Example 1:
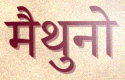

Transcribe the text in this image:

मैथुनो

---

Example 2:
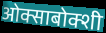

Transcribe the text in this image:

ओक्साबोक्शी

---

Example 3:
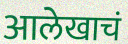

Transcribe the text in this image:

आलेखाचं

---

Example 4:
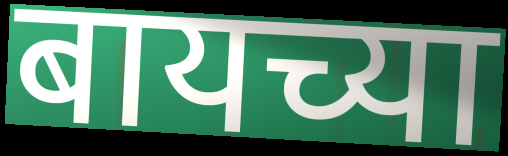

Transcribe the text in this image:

बायच्या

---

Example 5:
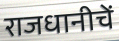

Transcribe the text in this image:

राजधानीचें